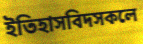
ইতিহাসবিদসকলে